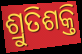
ଶ୍ରୁତିଶକ୍ତି